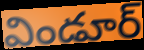
విండూర్